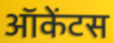
ऑकेंटस